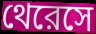
থেরেসে